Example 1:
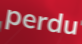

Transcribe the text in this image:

perdu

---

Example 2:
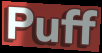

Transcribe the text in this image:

Puff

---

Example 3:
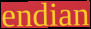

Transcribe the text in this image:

endian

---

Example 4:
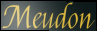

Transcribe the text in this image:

Meudon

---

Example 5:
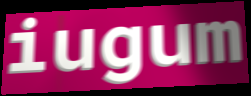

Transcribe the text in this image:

iugum